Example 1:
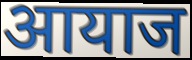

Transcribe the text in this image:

आयाज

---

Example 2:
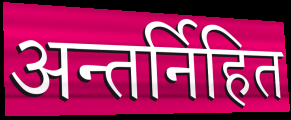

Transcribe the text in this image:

अन्तर्निहित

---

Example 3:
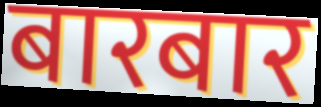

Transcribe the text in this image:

बारबार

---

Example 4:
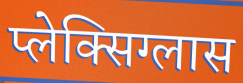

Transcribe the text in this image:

प्लेक्सिग्लास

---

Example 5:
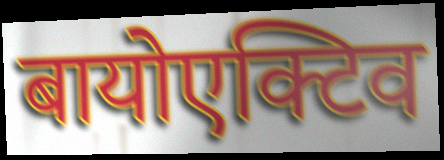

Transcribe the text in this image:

बायोएक्टिव